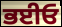
ਭਈਓ